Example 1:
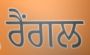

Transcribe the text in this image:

ਰੈਂਗਲ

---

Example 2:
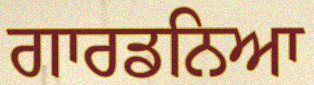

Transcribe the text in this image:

ਗਾਰਡਨਿਆ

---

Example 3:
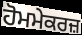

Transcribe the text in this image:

ਹੋਮਮੇਕਰਜ਼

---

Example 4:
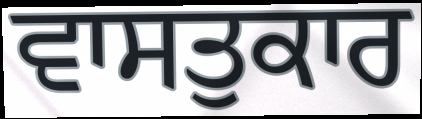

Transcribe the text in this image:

ਵਾਸਤੁਕਾਰ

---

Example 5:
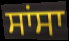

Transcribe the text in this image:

ਸਾਂਸਾ